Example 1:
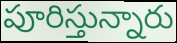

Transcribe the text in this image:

పూరిస్తున్నారు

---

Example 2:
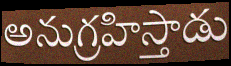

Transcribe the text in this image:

అనుగ్రహిస్తాడు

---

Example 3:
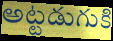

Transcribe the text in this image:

అట్టడుగుకి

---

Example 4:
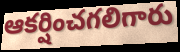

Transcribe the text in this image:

ఆకర్షించగలిగారు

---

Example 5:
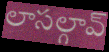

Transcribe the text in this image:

లాసల్గావ్